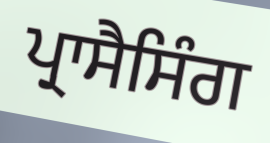
ਪ੍ਰਾਸੈਸਿੰਗ